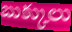
బుక్కులు